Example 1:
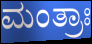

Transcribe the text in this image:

ಮಂತ್ರಾಃ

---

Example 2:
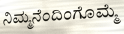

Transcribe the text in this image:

ನಿಮ್ಮನೆಂದಿಂಗೊಮ್ಮೆ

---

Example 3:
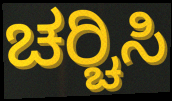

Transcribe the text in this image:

ಚರ‍್ಚಿಸಿ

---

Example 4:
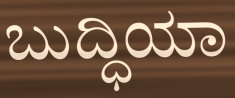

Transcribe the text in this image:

ಬುದ್ಧಿಯಾ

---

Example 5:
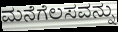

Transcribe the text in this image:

ಮನೆಗೆಲಸವನ್ನು